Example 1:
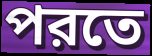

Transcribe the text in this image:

পরতে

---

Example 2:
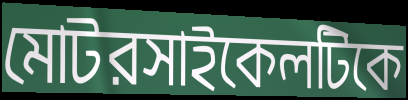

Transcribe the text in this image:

মোটরসাইকেলটিকে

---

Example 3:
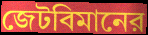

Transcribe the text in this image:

জেটবিমানের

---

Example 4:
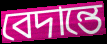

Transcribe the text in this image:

বেদান্তে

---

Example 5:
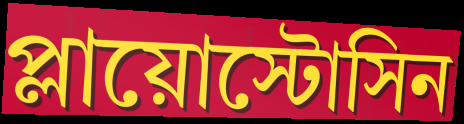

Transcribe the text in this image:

প্লায়োস্টোসিন